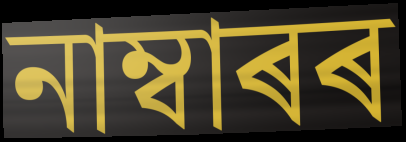
নাম্বাৰৰ